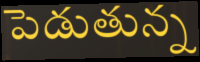
పెడుతున్న